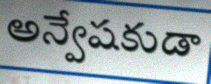
అన్వేషకుడా